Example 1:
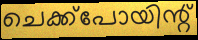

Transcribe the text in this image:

ചെക്ക്പോയിന്റ്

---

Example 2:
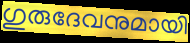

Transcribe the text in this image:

ഗുരുദേവനുമായി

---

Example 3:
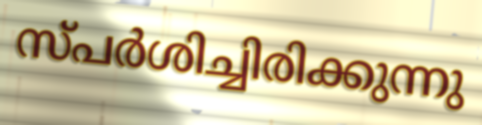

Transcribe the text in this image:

സ്പർശിച്ചിരിക്കുന്നു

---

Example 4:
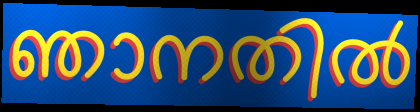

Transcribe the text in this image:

ഞാനതിൽ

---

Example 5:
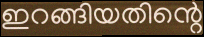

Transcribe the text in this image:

ഇറങ്ങിയതിന്റെ